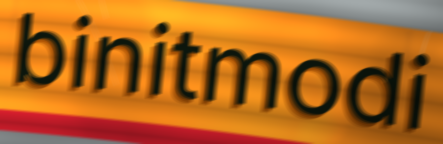
binitmodi